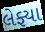
લેફ્યા